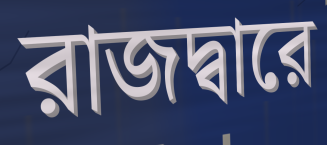
রাজদ্বারে